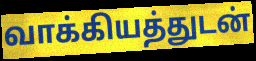
வாக்கியத்துடன்